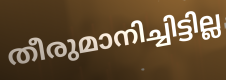
തീരുമാനിച്ചിട്ടില്ല